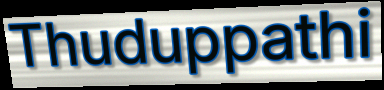
Thuduppathi